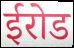
ईरोड